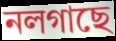
নলগাছে